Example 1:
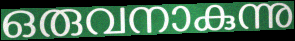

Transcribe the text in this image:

ഒരുവനാകുന്നു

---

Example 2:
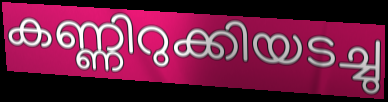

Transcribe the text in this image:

കണ്ണിറുക്കിയടച്ചു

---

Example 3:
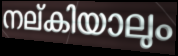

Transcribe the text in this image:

നല്‌കിയാലും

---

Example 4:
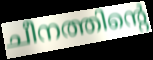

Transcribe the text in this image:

ചീനത്തിന്റെ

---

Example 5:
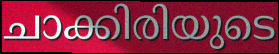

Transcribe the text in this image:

ചാക്കിരിയുടെ